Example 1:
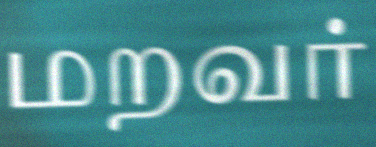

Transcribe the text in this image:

மறவர்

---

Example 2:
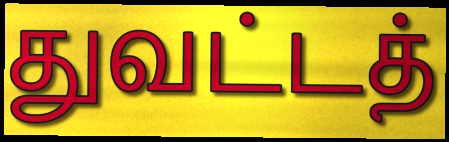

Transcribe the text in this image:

துவட்டத்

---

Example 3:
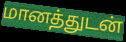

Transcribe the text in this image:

மானத்துடன்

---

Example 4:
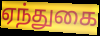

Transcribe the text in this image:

ஏந்துகை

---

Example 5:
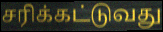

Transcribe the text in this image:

சரிக்கட்டுவது